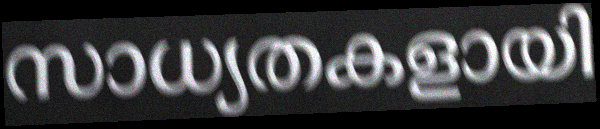
സാധ്യതകളായി